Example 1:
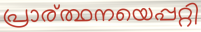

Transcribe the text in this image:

പ്രാര്ത്ഥനയെപ്പറ്റി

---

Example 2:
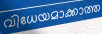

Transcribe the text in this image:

വിധേയമാക്കാത്ത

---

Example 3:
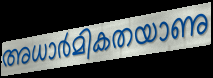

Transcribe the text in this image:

അധാർമികതയാണു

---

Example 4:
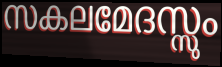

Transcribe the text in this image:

സകലമേദസ്സും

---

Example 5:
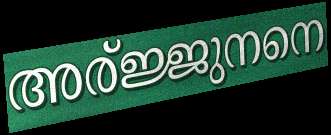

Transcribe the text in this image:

അര്ജ്ജുനനെ